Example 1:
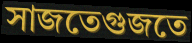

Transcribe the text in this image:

সাজতেগুজতে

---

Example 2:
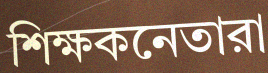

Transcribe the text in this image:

শিক্ষকনেতারা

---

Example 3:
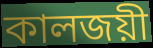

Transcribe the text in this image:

কালজয়ী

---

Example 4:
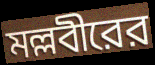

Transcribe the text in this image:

মল্লবীরের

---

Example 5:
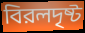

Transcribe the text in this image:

বিরলদৃষ্ট